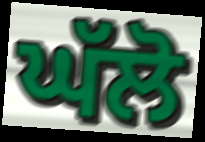
ਘੱਲੋ